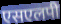
एसएलपी